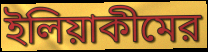
ইলিয়াকীমের